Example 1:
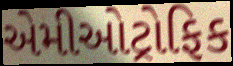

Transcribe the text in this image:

એમીઓટ્રોફિક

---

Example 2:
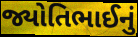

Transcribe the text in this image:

જ્યોતિભાઈનું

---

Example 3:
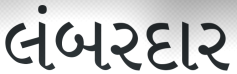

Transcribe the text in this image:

લંબરદાર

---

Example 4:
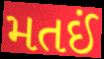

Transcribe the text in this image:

મતઈં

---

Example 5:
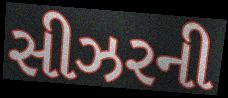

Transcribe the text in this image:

સીઝરની